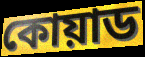
কোয়াড